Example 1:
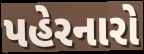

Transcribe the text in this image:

પહેરનારો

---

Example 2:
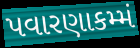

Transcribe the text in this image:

પવારણાકમ્મં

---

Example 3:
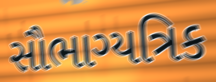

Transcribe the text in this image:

સૌભાગ્યત્રિક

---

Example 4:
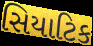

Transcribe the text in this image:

સિયાટિક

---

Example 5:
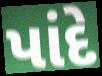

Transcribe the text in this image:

પાંદે